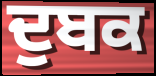
ਦੁਬਕ